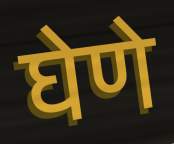
घेणे